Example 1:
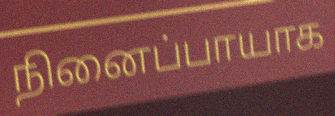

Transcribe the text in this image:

நினைப்பாயாக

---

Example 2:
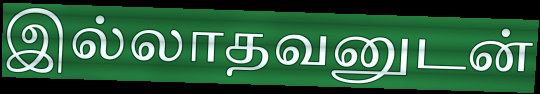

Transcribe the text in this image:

இல்லாதவனுடன்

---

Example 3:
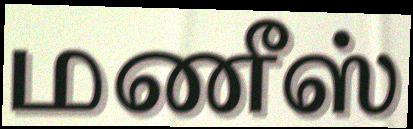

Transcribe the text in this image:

மணீஸ்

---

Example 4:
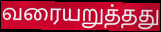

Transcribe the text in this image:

வரையறுத்தது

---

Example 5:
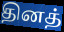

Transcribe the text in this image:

தினத்